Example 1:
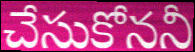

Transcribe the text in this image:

చేసుకోననీ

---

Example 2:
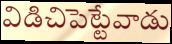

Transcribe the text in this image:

విడిచిపెట్టేవాడు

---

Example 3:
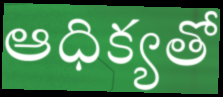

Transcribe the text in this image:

ఆధిక్యతో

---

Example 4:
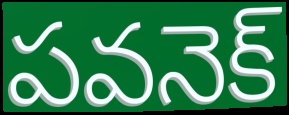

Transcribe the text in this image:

పవనెక్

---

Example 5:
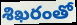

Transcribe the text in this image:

శిఖరంతో